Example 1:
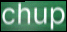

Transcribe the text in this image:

chup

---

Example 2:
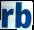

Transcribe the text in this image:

rb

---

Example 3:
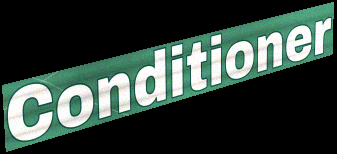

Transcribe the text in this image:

Conditioner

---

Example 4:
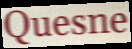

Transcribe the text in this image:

Quesne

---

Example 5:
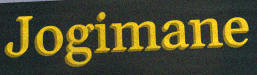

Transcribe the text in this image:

Jogimane